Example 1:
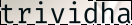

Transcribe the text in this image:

trividha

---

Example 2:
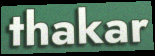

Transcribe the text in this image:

thakar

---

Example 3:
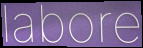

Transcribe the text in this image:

labore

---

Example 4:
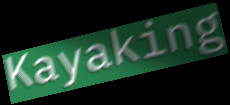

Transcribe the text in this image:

Kayaking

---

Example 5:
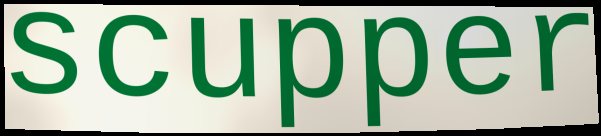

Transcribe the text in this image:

scupper